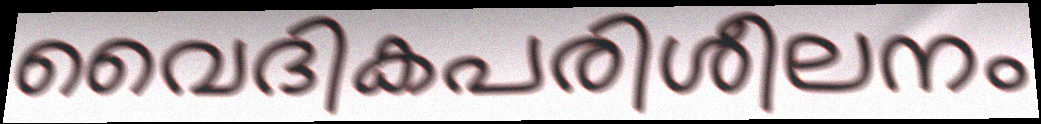
വൈദികപരിശീലനം